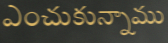
ఎంచుకున్నాము